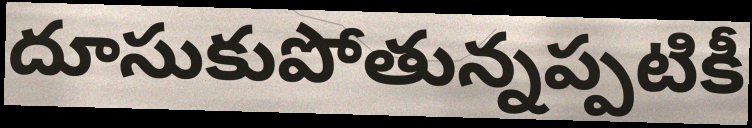
దూసుకుపోతున్నప్పటికీ